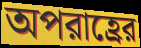
অপরাহ্রের